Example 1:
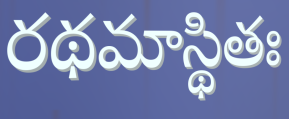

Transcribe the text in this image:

రథమాస్థితః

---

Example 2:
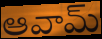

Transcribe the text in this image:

ఆవామ్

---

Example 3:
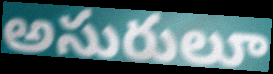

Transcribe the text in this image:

అసురులూ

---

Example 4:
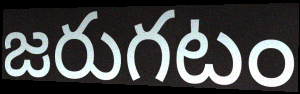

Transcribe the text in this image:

జరుగటం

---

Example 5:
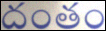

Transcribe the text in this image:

దంతం